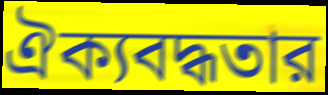
ঐক্যবদ্ধতার